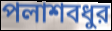
পলাশবধুর